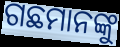
ଗଛମାନଙ୍କୁ